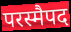
परस्मैपद